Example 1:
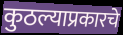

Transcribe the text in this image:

कुठल्याप्रकारचे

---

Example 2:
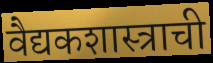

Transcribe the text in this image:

वैद्यकशास्त्राची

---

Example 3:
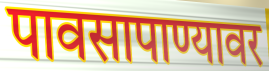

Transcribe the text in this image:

पावसापाण्यावर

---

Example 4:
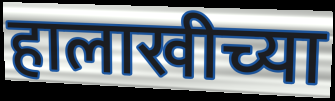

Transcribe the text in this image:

हालाखीच्या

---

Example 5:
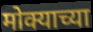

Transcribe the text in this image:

मोक्याच्या